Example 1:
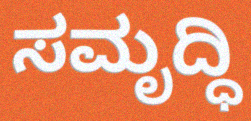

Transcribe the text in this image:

ಸಮೃದ್ಧಿ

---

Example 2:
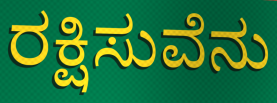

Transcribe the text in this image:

ರಕ್ಷಿಸುವೆನು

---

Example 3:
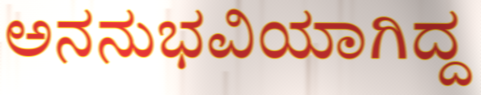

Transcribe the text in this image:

ಅನನುಭವಿಯಾಗಿದ್ದ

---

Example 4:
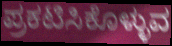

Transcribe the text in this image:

ಪ್ರಕಟಿಸಿಕೊಳ್ಳುವ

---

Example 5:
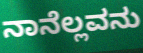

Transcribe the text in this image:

ನಾನೆಲ್ಲವನು